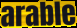
arable